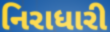
નિરાધારી